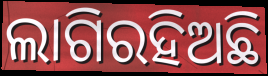
ଲାଗିରହିଅଛି